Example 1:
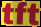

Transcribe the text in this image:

tft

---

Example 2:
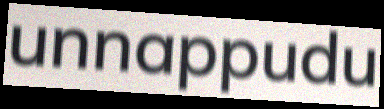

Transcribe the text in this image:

unnappudu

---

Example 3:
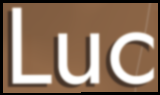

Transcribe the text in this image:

Luc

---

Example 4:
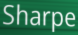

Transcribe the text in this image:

Sharpe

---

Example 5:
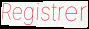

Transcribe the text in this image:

Registrer